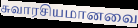
சுவாரசியமானவை